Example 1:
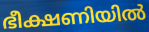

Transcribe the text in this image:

ഭീക്ഷണിയിൽ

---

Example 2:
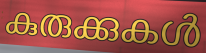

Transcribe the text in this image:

കുരുക്കുകൾ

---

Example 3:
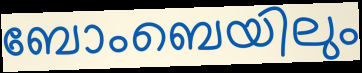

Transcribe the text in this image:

ബോംബെയിലും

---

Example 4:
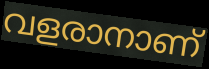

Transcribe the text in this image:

വളരാനാണ്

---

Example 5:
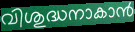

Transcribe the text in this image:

വിശുദ്ധനാകാൻ